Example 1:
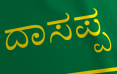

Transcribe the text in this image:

ದಾಸಪ್ಪ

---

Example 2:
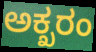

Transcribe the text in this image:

ಅಕ್ಖರಂ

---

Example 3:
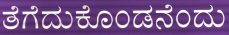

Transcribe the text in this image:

ತೆಗೆದುಕೊಂಡನೆಂದು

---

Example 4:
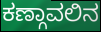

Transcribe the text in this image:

ಕಣ್ಗಾವಲಿನ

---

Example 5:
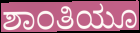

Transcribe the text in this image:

ಶಾಂತಿಯೂ